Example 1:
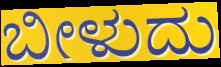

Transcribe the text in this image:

ಬೀಳುದು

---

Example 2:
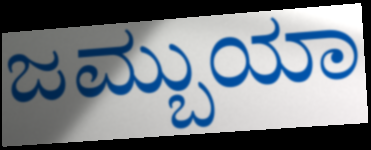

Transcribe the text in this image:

ಜಮ್ಬುಯಾ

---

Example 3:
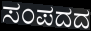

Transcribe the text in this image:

ಸಂಪದದ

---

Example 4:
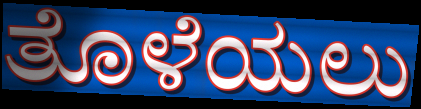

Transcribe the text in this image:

ತೊಳೆಯಲು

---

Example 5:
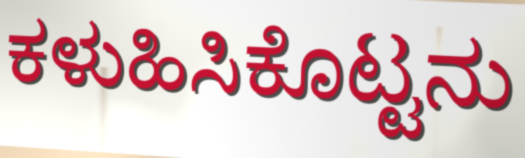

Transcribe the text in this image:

ಕಳುಹಿಸಿಕೊಟ್ಟನು